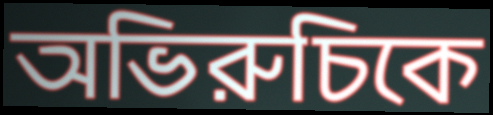
অভিরুচিকে